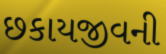
છકાયજીવની